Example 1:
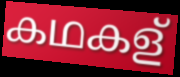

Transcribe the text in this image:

കഥകള്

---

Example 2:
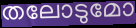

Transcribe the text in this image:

തലോടുമോ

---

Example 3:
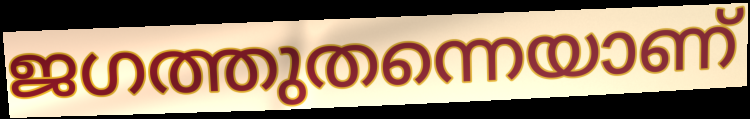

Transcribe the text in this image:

ജഗത്തുതന്നെയാണ്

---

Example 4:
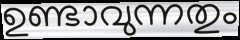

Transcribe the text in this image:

ഉണ്ടാവുന്നതും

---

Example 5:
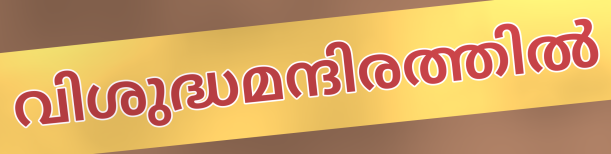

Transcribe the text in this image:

വിശുദ്ധമന്ദിരത്തിൽ